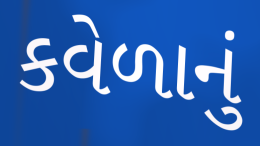
કવેળાનું